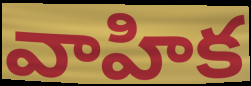
వాహిక